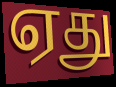
ஏது